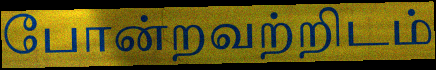
போன்றவற்றிடம்